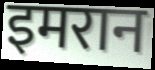
इमरान